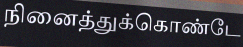
நினைத்துக்கொண்டே